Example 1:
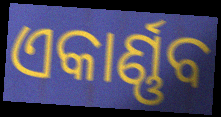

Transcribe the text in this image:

ଏକାର୍ଣ୍ଣବ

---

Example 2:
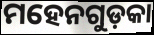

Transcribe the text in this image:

ମହେନଗୁଡ଼କା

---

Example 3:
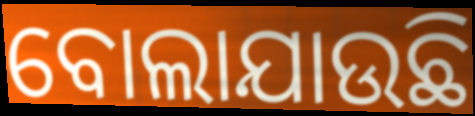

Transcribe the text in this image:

ବୋଲାଯାଉଛି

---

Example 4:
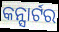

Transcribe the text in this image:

କନ୍ସାର୍ଟର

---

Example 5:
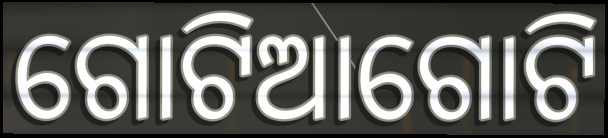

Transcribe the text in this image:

ଗୋଟିଆଗୋଟି